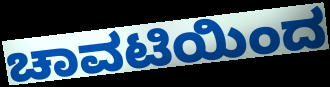
ಚಾವಟಿಯಿಂದ